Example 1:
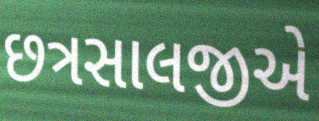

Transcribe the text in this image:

છત્રસાલજીએ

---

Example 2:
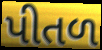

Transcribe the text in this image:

પીતળ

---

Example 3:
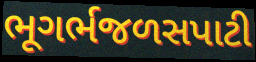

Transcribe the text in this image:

ભૂગર્ભજળસપાટી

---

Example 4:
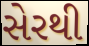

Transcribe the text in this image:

સેરથી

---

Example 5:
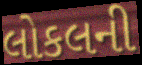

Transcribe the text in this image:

લોકલની